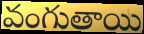
వంగుతాయి